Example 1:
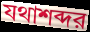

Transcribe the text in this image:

যথাশব্দর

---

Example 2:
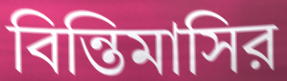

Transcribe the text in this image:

বিন্তিমাসির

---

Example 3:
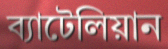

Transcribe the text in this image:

ব্যাটেলিয়ান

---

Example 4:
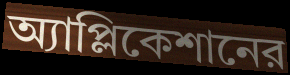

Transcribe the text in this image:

অ্যাপ্লিকেশানের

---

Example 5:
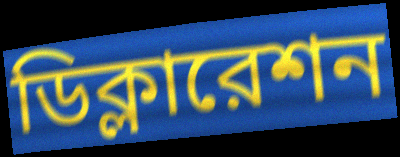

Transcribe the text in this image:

ডিক্লারেশন